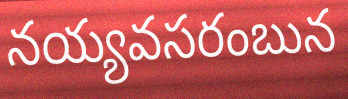
నయ్యవసరంబున